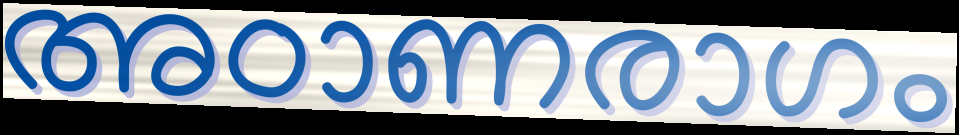
അഠാണരാഗം